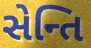
સેન્તિ